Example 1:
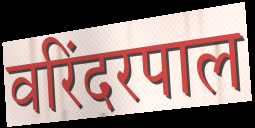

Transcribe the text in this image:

वरिंदरपाल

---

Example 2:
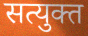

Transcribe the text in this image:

सत्युक्त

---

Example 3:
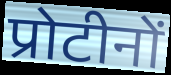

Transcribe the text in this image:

प्रोटीनों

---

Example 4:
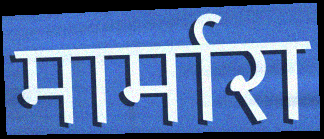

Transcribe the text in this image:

मार्मारा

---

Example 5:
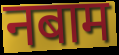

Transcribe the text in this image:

नबाम